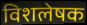
विशलेषक